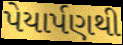
પેયાર્પણથી